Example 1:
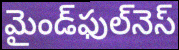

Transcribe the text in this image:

మైండ్‌ఫుల్‌నెస్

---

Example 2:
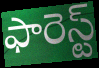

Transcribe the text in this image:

ఫారెస్ట్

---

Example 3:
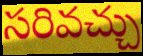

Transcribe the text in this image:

సరివచ్చు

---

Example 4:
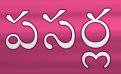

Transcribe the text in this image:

పసర్ల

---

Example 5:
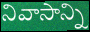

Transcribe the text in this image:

నివాసాన్ని